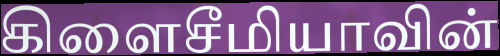
கிளைசீமியாவின்